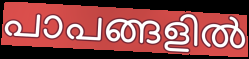
പാപങ്ങളിൽ